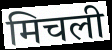
मिचली